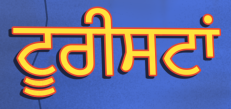
ਟੂਰੀਸਟਾਂ